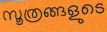
സൂത്രങ്ങളുടെ